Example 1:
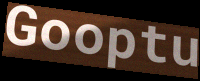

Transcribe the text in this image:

Gooptu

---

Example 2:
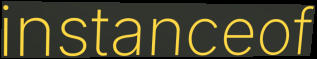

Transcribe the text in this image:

instanceof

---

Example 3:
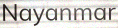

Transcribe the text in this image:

Nayanmar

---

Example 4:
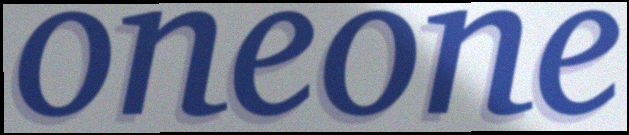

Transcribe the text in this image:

oneone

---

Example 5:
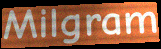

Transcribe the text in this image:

Milgram